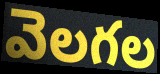
వెలగల